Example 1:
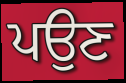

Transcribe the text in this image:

ਪਉਣ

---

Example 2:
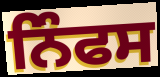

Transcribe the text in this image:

ਨਿੰਫਸ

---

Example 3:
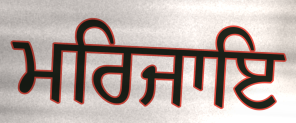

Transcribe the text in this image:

ਮਰਿਜਾਇ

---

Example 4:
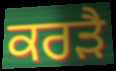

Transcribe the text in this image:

ਕਰੜੈ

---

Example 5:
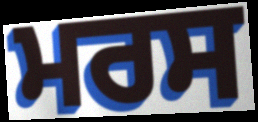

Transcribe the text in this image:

ਮਰਸ